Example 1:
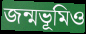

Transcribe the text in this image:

জন্মভূমিও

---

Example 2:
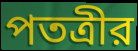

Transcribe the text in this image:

পতত্রীর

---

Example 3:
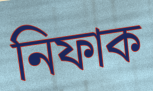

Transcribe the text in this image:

নিফাক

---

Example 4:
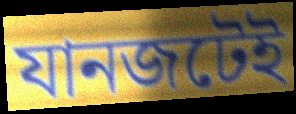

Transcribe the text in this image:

যানজটেই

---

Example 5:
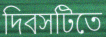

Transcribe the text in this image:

দিবসটিতে